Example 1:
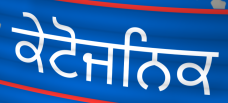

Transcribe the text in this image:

ਕੇਟੋਜਨਿਕ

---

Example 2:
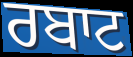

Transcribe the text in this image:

ਰਬਾਟ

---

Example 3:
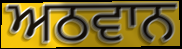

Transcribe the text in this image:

ਅਠਵਾਨ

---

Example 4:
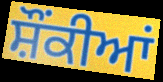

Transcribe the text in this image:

ਸ਼ੌਂਕੀਆਂ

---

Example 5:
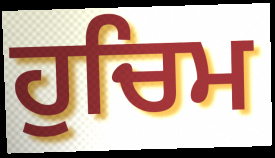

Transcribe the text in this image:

ਹੁਚਿਮ